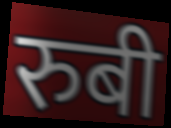
रुबी